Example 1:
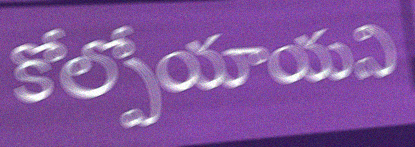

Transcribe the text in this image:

కోల్పోయాయని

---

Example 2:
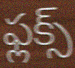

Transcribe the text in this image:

ఫ్లక్స్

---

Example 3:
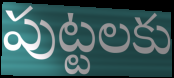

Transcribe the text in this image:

పుట్టలకు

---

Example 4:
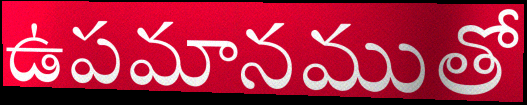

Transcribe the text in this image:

ఉపమానముతో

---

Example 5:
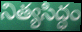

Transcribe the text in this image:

నిత్యసిద్ధం